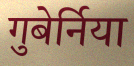
गुबेर्निया